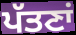
ਪੱਤਣਾਂ